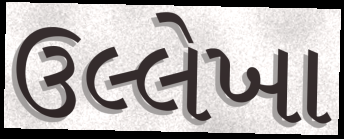
ઉલ્લેખા